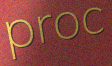
proc